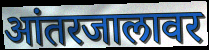
आंतरजालावर